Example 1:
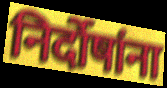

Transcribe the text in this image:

निर्दोषांना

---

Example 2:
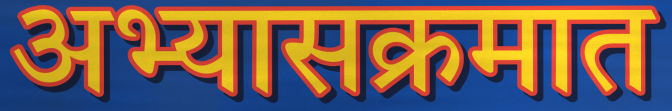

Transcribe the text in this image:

अभ्यासक्रमात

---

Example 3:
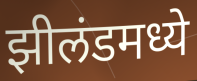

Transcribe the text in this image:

झीलंडमध्ये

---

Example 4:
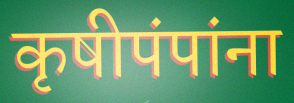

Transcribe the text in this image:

कृषीपंपांना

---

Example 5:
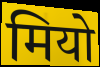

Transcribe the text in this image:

मियो